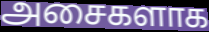
அசைகளாக